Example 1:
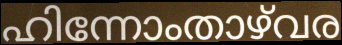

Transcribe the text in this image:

ഹിന്നോംതാഴ്‌വര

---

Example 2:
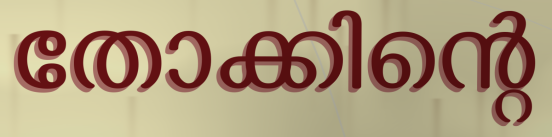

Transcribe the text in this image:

തോക്കിന്റെ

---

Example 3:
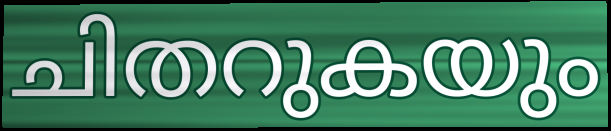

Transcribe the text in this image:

ചിതറുകയും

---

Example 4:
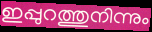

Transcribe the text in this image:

ഇപ്പുറത്തുനിന്നും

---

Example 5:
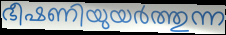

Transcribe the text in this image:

ഭീഷണിയുയർത്തുന്ന